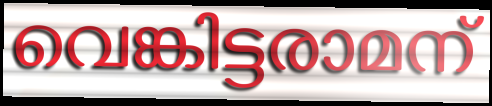
വെങ്കിട്ടരാമന്